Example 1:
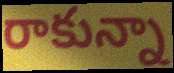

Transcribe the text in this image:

రాకున్నా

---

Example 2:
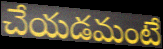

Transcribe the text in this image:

చేయడమంటే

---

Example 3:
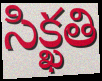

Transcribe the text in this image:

సిక్ఖతి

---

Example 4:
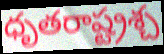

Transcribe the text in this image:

ధృతరాష్ట్రశ్చ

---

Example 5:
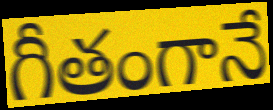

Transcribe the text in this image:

గీతంగానే